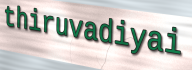
thiruvadiyai